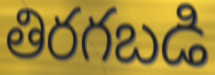
తిరగబడి